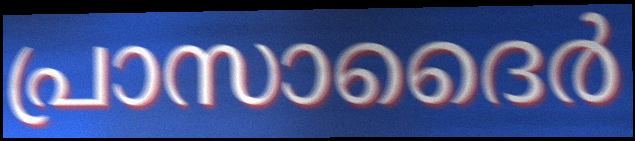
പ്രാസാദൈർ